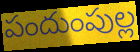
పందుంపుల్ల